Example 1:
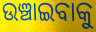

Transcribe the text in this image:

ଉଞ୍ଚାଇବାକୁ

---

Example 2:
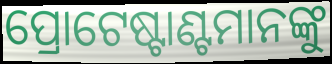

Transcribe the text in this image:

ପ୍ରୋଟେଷ୍ଟାଣ୍ଟମାନଙ୍କୁ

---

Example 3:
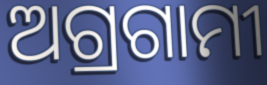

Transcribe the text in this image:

ଅଗ୍ରଗାମୀ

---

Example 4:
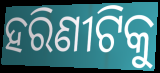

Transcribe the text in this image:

ହରିଣୀଟିକୁ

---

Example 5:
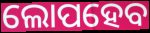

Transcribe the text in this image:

ଲୋପହେବ